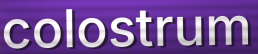
colostrum